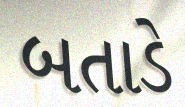
બતાડે